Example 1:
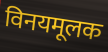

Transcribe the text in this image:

विनयमूलक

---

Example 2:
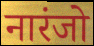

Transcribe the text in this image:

नारंजो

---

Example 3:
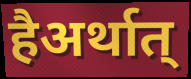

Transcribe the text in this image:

हैअर्थात्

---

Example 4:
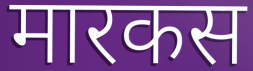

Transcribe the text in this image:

मारकस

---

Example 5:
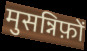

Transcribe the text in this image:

मुसन्निफ़ों